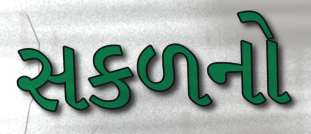
સકળનો